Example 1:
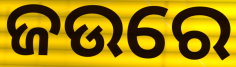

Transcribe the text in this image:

ଜଉରେ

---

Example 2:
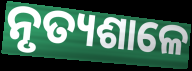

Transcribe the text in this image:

ନୃତ୍ୟଶାଳେ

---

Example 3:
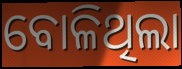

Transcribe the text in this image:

ବୋଳିଥିଲା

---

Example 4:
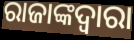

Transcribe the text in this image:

ରାଜାଙ୍କଦ୍ଵାରା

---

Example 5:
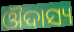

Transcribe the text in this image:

ଔଦାସ୍ୟ